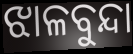
ଝାଳବୁନ୍ଦା